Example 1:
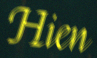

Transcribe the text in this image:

Hien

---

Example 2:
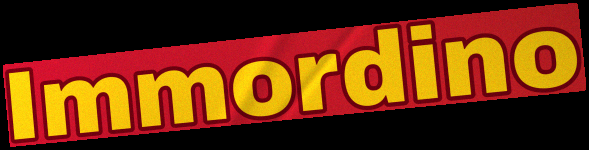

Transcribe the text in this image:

Immordino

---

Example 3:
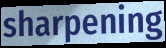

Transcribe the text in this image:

sharpening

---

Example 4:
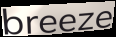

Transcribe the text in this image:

breeze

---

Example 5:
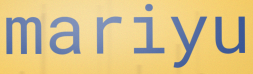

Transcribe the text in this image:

mariyu